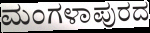
ಮಂಗಳಾಪುರದ